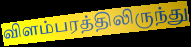
விளம்பரத்திலிருந்து